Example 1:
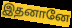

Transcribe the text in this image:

இதனானே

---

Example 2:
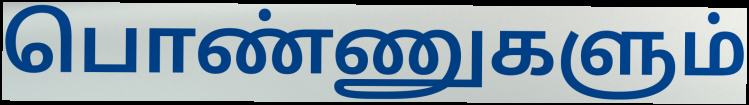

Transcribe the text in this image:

பொண்ணுகளும்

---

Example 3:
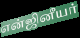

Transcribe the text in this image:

என்ஜினீயர்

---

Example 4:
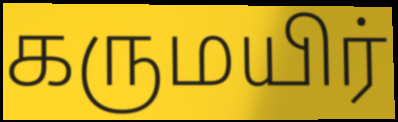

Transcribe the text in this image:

கருமயிர்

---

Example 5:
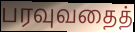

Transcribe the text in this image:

பரவுவதைத்